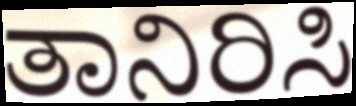
ತಾನಿರಿಸಿ